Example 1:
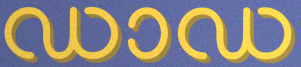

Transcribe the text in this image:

ഡാഡ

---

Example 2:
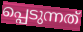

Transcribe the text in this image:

പ്പെടുന്നത്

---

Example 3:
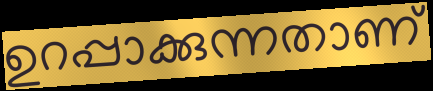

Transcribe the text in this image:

ഉറപ്പാക്കുന്നതാണ്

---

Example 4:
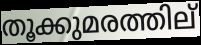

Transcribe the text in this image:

തൂക്കുമരത്തില്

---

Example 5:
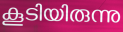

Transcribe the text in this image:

കൂടിയിരുന്നു